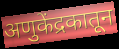
अणुकेंद्रकातून